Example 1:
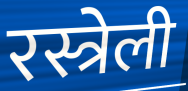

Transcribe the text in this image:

रस्त्रेली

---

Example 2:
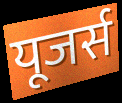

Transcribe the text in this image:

यूजर्स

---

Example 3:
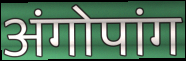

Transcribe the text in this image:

अंगोपांग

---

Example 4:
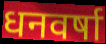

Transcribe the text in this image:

धनवर्षा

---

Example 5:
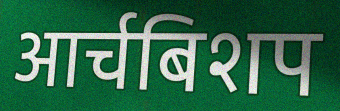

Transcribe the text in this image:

आर्चबिशप